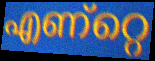
എണ്റ്റെ